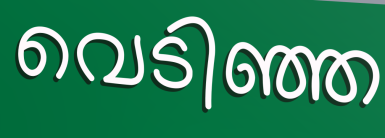
വെടിഞ്ഞ